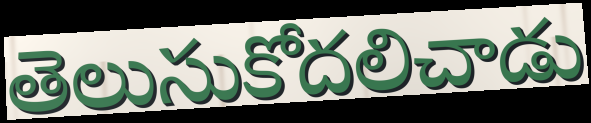
తెలుసుకోదలిచాడు